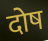
दोष